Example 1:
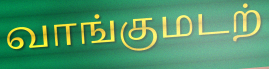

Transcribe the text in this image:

வாங்குமடற்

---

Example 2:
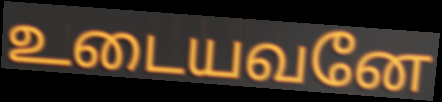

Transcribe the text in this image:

உடையவனே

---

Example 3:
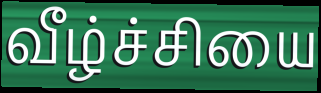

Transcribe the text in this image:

வீழ்ச்சியை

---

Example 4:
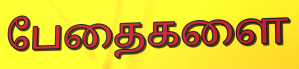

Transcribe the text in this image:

பேதைகளை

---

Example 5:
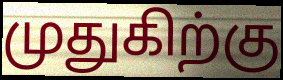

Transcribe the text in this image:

முதுகிற்கு